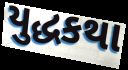
યુદ્ધકથા